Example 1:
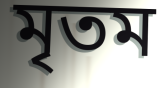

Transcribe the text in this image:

মৃতম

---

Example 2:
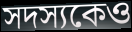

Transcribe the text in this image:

সদস্যকেও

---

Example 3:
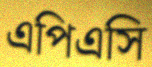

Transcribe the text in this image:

এপিএসি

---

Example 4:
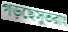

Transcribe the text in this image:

গড়ছেসুতরাং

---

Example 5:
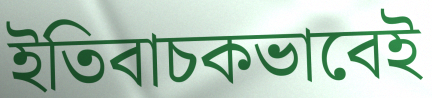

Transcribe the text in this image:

ইতিবাচকভাবেই